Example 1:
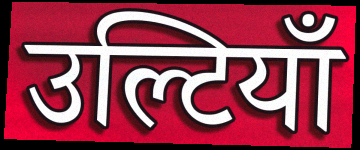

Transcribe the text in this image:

उल्टियाँ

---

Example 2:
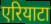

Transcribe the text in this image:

एरियाटा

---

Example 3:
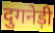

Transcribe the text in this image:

दुगनेड़ी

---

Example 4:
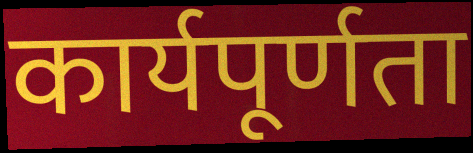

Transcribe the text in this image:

कार्यपूर्णता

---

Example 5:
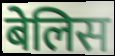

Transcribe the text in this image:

बेलिस